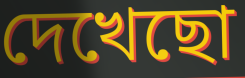
দেখেছো